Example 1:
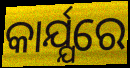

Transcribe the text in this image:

କାର୍ଯ୍ଯରେ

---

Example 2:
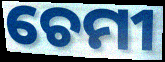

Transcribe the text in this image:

ଚେମୀ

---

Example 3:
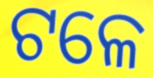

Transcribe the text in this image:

ଟଳେ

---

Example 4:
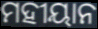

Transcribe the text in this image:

ମହୀୟାନ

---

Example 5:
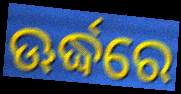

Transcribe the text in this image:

ଊର୍ଦ୍ଧରେ